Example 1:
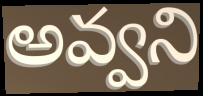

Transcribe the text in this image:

అవ్వని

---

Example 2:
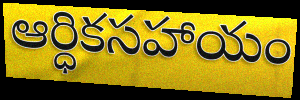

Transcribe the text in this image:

ఆర్ధికసహాయం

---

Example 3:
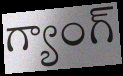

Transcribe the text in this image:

గ్యాంగ్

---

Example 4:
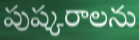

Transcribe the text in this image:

పుష్కరాలను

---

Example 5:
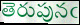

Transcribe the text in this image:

తెరుపునఁ